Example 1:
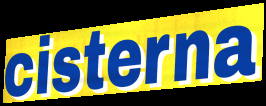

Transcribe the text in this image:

cisterna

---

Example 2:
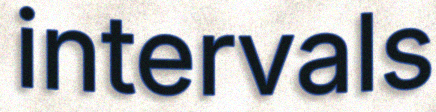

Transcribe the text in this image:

intervals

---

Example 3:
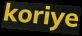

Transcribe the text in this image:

koriye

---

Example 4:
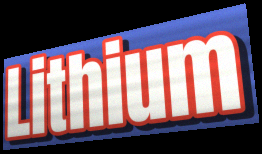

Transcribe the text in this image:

Lithium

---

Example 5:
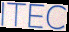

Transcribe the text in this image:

ITEC